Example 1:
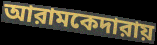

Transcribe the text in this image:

আরামকেদারায়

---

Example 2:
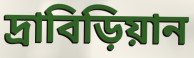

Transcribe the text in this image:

দ্রাবিড়িয়ান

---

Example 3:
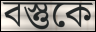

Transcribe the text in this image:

বস্তুকে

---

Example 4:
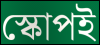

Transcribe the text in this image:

স্কোপই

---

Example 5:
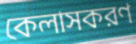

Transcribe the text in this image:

কেলাসকরণ